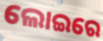
ଲୋଇରେ